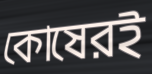
কোষেরই